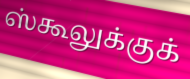
ஸ்கூலுக்குக்